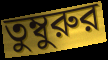
তুম্বুরুর